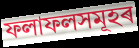
ফলাফলসমূহৰ